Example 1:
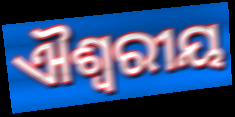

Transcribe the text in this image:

ଐଶ୍ୱରୀୟ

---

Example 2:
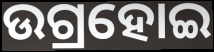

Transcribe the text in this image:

ଉଗ୍ରହୋଇ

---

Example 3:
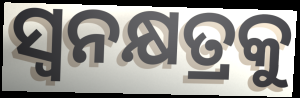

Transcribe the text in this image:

ସ୍ୱନକ୍ଷତ୍ରକୁ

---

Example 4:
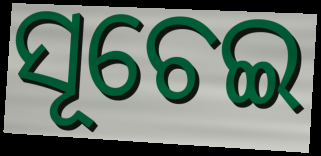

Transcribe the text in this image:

ସୂଚେଇ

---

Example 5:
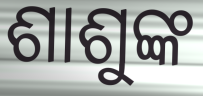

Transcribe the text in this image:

ଶାଶୁଙ୍କ